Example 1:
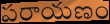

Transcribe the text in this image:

పరాయణం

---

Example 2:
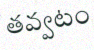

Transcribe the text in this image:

తవ్వటం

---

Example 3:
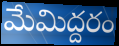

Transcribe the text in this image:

మేమిద్దరం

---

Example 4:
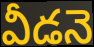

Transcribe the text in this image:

వీడనె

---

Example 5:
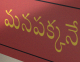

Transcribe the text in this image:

మనపక్కనే